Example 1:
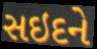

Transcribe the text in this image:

સઇદને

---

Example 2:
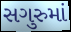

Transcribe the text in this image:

સગુરુમાં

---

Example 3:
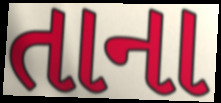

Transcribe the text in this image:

તાના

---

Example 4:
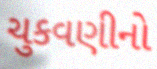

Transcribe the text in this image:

ચુકવણીનો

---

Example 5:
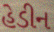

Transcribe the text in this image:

હેડીન